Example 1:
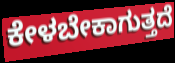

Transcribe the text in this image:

ಕೇಳಬೇಕಾಗುತ್ತದೆ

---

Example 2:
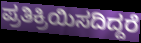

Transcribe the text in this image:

ಪ್ರತಿಕ್ರಿಯಿಸದಿದ್ದರೆ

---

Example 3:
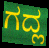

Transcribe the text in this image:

ಗದ್ಲ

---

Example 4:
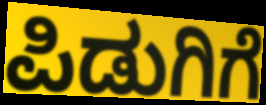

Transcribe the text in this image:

ಪಿಡುಗಿಗೆ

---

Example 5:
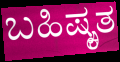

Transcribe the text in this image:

ಬಹಿಷ್ಕೃತ